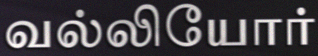
வல்லியோர்